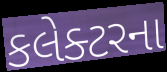
કલેક્ટરના